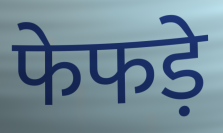
फेफड़े